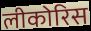
लीकोरिस